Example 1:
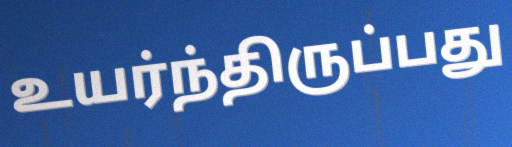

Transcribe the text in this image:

உயர்ந்திருப்பது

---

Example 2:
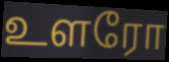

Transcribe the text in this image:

உளரோ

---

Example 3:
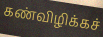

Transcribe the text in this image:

கண்விழிக்கச்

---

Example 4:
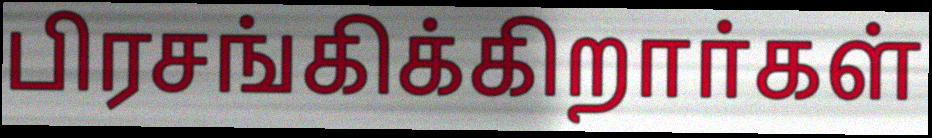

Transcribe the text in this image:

பிரசங்கிக்கிறார்கள்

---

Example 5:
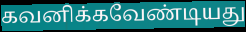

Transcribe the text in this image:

கவனிக்கவேண்டியது